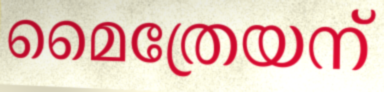
മൈത്രേയന്